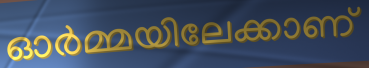
ഓർമ്മയിലേക്കാണ്